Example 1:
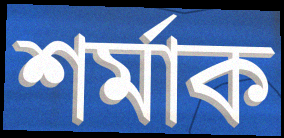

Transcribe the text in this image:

শৰ্মাক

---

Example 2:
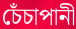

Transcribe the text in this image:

চেঁচাপানী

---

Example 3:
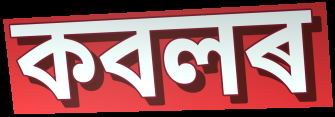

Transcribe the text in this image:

কবলৰ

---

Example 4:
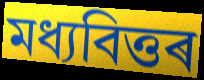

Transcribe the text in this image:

মধ্যবিত্তৰ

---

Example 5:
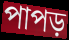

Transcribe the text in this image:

পাপড়